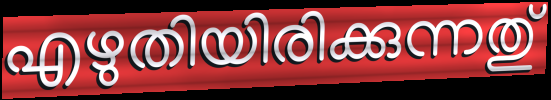
എഴുതിയിരിക്കുന്നതു്